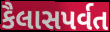
કૈલાસપર્વત